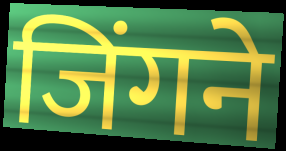
जिंगने